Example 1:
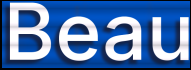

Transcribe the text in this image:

Beau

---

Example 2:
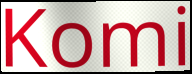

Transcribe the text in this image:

Komi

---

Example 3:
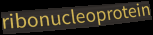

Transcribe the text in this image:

ribonucleoprotein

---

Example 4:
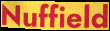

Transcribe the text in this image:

Nuffield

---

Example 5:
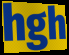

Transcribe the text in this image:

hgh